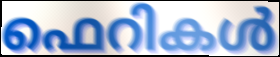
ഫെറികൾ